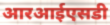
आरआईएसडी